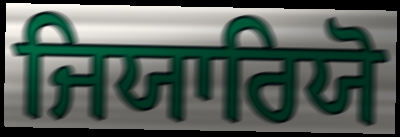
ਜਿਯਾਰਿਯੋ